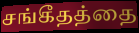
சங்கீதத்தை